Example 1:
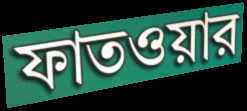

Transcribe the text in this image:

ফাতওয়ার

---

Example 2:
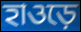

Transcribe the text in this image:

হাওড়ে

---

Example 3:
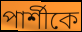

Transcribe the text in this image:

পার্শীকে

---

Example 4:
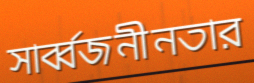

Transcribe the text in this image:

সার্ব্বজনীনতার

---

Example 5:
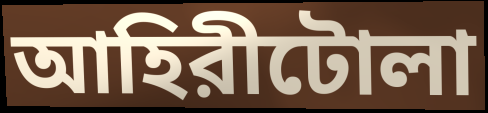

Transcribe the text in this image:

আহিরীটোলা